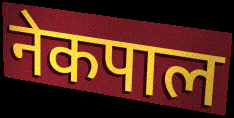
नेकपाल